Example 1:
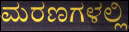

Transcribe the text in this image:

ಮರಣಗಳಲ್ಲಿ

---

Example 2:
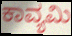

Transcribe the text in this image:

ಕಾವ್ಯಮಿ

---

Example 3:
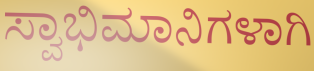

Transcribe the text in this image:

ಸ್ವಾಭಿಮಾನಿಗಳಾಗಿ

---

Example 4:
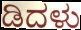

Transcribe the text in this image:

ಡಿದಳು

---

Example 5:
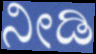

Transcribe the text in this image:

ನೀಡಿ